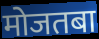
मोजतबा